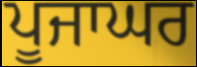
ਪੂਜਾਘਰ